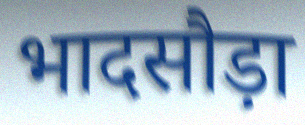
भादसौड़ा